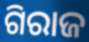
ଗିରାଜ